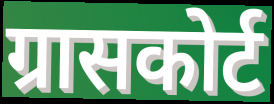
ग्रासकोर्ट